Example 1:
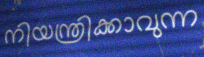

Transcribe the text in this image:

നിയന്ത്രിക്കാവുന്ന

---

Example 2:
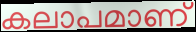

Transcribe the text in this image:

കലാപമാണ്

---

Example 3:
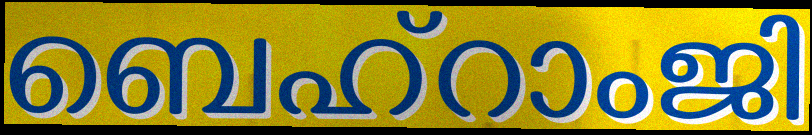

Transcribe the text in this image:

ബെഹ്റാംജി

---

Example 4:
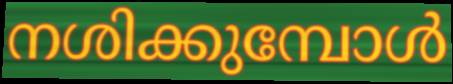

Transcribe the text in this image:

നശിക്കുമ്പോൾ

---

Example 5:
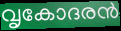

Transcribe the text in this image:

വൃകോദരൻ